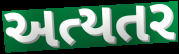
અત્યતર